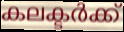
കലക്ടർക്ക്